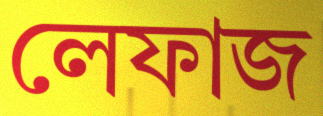
লেফাজ